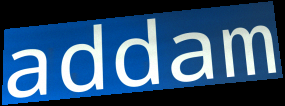
addam